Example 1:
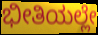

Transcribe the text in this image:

ಭೀತಿಯಲ್ಲೇ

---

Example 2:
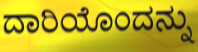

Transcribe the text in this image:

ದಾರಿಯೊಂದನ್ನು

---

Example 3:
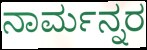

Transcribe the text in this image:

ನಾರ್ಮನ್ನರ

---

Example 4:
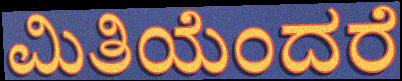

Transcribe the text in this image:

ಮಿತಿಯೆಂದರೆ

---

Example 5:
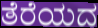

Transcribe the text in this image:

ತೆರೆಯದ